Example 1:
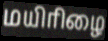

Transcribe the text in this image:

மயிரிழை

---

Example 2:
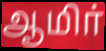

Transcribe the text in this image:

ஆமிர்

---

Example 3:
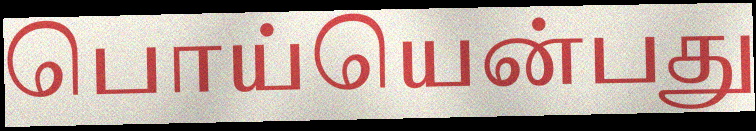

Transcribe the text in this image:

பொய்யென்பது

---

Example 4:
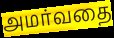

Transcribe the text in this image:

அமர்வதை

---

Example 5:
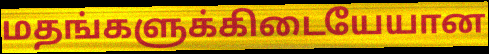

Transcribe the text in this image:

மதங்களுக்கிடையேயான